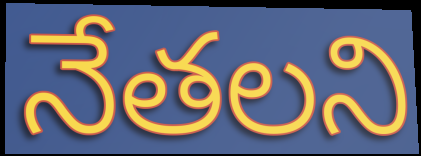
నేతలని